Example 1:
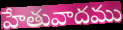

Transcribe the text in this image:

హేతువాదము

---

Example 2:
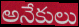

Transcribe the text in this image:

అనేకులు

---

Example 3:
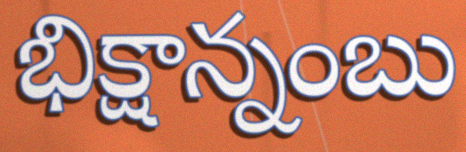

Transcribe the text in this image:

భిక్షాన్నంబు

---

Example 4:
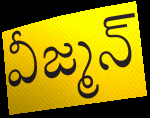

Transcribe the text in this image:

వీజ్మన్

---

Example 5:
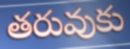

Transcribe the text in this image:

తరువుకు